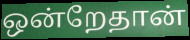
ஒன்றேதான்